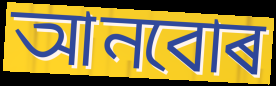
আনবোৰ